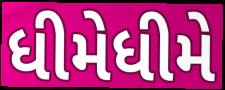
ધીમેધીમે